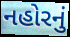
નહોરનું